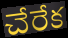
చేరేక